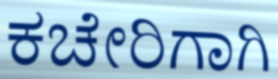
ಕಚೇರಿಗಾಗಿ